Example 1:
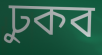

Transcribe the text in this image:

ঢুকব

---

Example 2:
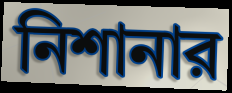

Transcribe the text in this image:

নিশানার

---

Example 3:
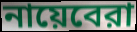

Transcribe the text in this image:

নায়েবেরা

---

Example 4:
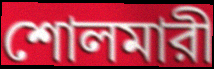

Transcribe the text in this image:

শোলমারী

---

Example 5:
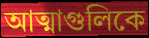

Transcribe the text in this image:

আত্মাগুলিকে